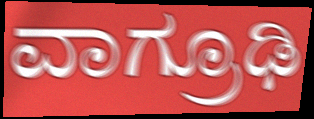
ವಾಗ್ರೂಢಿ